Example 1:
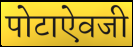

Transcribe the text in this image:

पोटाऐवजी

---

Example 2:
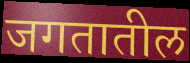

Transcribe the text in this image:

जगतातील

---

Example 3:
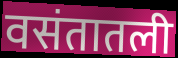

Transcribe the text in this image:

वसंतातली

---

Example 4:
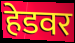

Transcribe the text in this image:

हेडवर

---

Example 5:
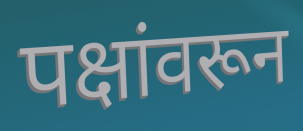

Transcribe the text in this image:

पक्षांवरून